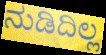
ನುಡಿದಿಲ್ಲ